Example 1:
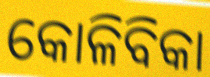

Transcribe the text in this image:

କୋଳିବିକା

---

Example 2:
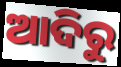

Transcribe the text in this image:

ଆଦିରୁ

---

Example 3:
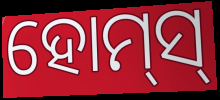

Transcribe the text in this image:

ହୋମ୍‌ସ୍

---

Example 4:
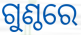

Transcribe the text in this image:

ଗୁଣ୍ଠରେ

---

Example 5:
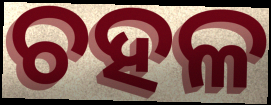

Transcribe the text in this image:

ଚହଳ